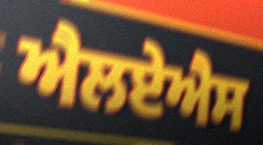
ਐਲਏਐਸ